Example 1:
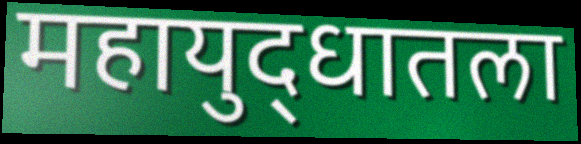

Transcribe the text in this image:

महायुद्धातला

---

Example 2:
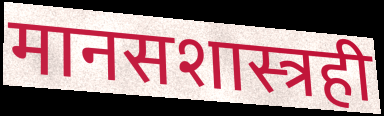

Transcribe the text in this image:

मानसशास्त्रही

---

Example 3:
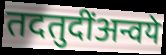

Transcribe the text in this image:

तदतुदींअन्वये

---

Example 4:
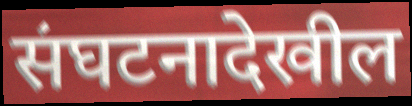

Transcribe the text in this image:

संघटनादेखील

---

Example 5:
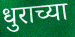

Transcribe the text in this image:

धुराच्या